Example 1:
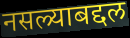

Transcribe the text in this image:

नसल्याबद्दल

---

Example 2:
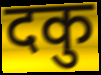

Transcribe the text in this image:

दकु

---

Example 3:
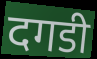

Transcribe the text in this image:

दगडी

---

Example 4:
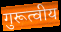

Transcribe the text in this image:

गुरूत्वीय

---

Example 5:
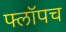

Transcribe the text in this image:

फ्लॉपच